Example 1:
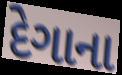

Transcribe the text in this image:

દેગાના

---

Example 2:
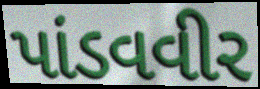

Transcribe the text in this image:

પાંડવવીર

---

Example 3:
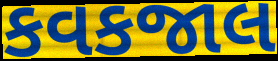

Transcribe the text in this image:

કવકજાલ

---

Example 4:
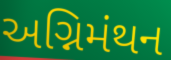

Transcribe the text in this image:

અગ્નિમંથન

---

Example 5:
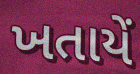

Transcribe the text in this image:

ખતાયેં